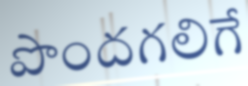
పొందగలిగే